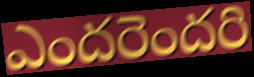
ఎందరెందరి